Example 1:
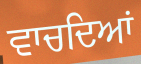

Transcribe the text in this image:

ਵਾਚਦਿਆਂ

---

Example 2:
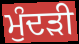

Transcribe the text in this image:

ਮੁੰਦੜੀ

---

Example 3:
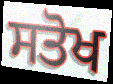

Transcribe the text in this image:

ਸਤੋਖ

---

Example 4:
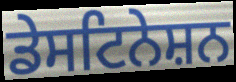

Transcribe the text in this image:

ਡੇਸਟਿਨੇਸ਼ਨ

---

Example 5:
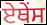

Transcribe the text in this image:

ਏਥੇੰਸ